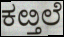
ಕೞ್ತಲೆ